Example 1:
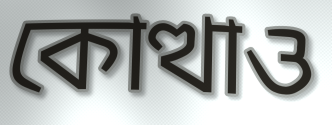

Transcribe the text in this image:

কোত্থাও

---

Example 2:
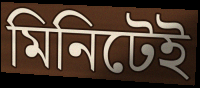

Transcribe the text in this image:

মিনিটেই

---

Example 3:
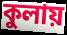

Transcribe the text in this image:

কুলায়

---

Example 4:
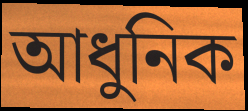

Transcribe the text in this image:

আধুনিক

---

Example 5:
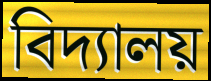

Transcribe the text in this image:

বিদ্যালয়